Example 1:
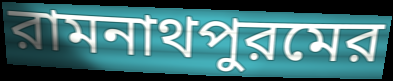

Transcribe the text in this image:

রামনাথপুরমের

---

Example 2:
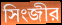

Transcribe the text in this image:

সিংজীর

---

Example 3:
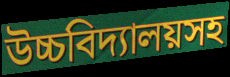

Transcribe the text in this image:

উচ্চবিদ্যালয়সহ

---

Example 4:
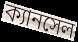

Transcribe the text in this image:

ক্যানসেল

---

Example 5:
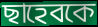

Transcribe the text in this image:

ছাহেবকে